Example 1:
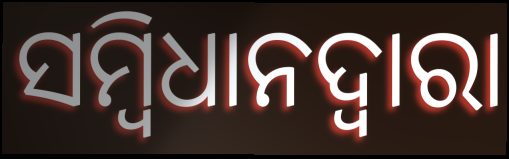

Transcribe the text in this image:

ସମ୍ବିଧାନଦ୍ବାରା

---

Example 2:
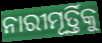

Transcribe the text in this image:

ନାରୀମୂର୍ତ୍ତିକୁ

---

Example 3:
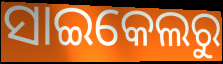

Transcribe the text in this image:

ସାଇକେଲରୁ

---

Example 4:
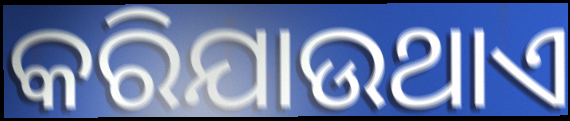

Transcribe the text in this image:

କରିଯାଉଥାଏ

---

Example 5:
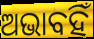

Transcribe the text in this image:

ଅଭାବହିଁ